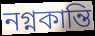
নগ্নকান্তি